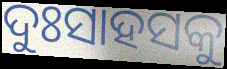
ଦୁଃସାହସକୁ